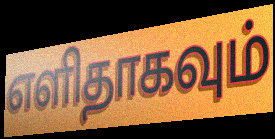
எளிதாகவும்